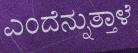
ಎಂದೆನ್ನುತ್ತಾಳೆ